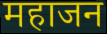
महाजन